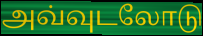
அவ்வுடலோடு